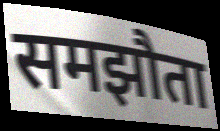
समझौता